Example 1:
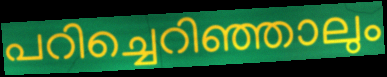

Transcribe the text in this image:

പറിച്ചെറിഞ്ഞാലും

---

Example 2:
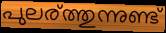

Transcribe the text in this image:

പുലര്ത്തുന്നുണ്ട്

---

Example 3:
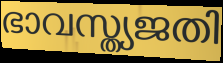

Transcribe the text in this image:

ഭാവസ്ത്യജതി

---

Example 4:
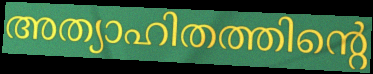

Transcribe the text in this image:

അത്യാഹിതത്തിന്റെ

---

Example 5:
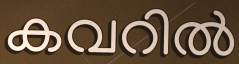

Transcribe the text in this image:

കവറിൽ